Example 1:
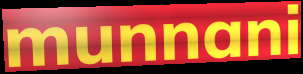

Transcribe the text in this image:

munnani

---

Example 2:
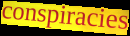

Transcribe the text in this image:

conspiracies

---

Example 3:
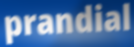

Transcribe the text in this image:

prandial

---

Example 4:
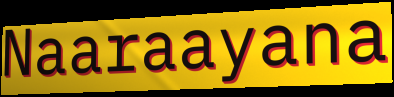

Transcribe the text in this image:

Naaraayana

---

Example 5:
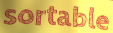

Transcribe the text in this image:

sortable